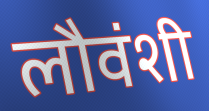
लौवंशी